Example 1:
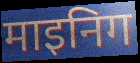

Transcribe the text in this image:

माइनिग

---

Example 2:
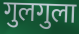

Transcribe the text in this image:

गुलगुला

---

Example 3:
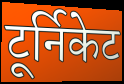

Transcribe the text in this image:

टूर्निकेट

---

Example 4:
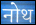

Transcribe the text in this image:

नोथ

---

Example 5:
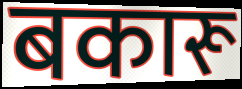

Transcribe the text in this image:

बकारू